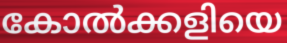
കോൽക്കളിയെ